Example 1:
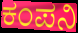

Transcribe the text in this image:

ಕಂಪನಿ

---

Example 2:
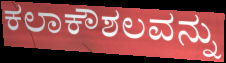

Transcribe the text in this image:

ಕಲಾಕೌಶಲವನ್ನು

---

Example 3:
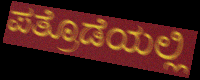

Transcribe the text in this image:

ಪತ್ರೊಡೆಯಲ್ಲಿ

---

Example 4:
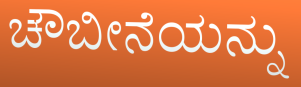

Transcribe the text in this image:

ಚೌಬೀನೆಯನ್ನು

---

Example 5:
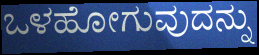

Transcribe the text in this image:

ಒಳಹೋಗುವುದನ್ನು